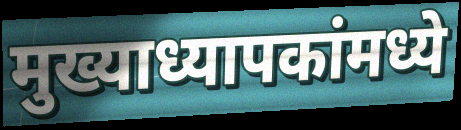
मुख्याध्यापकांमध्ये